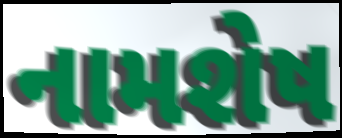
નામશેષ